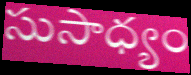
సుసాధ్యం